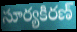
సూర్యకిరణ్